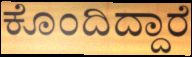
ಕೊಂದಿದ್ದಾರೆ